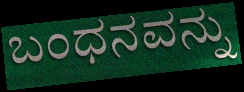
ಬಂಧನವನ್ನು